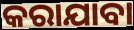
କରାଯାବା